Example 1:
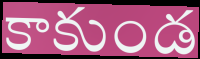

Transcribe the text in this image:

కాకుండ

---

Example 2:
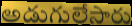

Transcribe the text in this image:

అడుగులేసారు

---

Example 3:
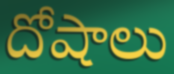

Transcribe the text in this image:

దోషాలు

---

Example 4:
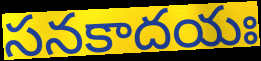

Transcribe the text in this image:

సనకాదయః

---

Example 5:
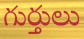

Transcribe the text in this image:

గుర్తులు